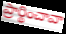
ప్రార్థించావా